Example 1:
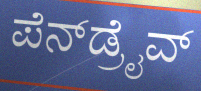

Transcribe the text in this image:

ಪೆನ್‌ಡ್ರೈವ್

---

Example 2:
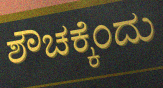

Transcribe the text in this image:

ಶೌಚಕ್ಕೆಂದು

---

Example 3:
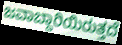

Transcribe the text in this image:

ಜವಾಬ್ದಾರಿಯಿರುತ್ತದೆ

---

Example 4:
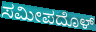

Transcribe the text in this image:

ಸಮೀಪದೊಳ್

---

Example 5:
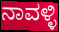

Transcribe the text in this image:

ನಾವಳ್ಳಿ